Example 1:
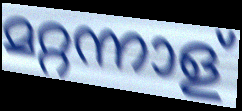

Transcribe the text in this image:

മറ്റന്നാള്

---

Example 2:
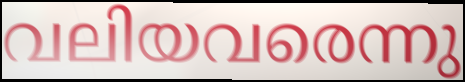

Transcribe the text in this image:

വലിയവരെന്നു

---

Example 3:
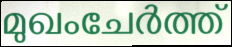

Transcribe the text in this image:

മുഖംചേർത്ത്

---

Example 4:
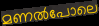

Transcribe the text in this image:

മണൽപോലെ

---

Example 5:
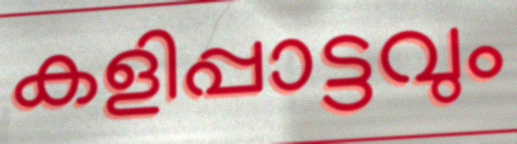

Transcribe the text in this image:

കളിപ്പാട്ടവും